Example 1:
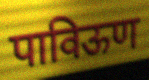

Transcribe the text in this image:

पाविऊण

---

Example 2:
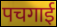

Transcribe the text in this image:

पचगाई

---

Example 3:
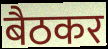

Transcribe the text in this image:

बैठकर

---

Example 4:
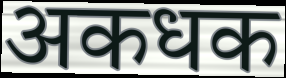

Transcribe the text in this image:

अकधक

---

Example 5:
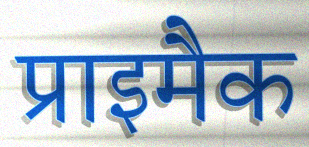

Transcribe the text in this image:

प्राइमैक